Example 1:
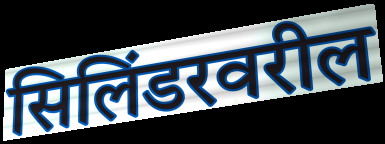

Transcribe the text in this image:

सिलिंडरवरील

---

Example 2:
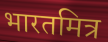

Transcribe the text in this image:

भारतमित्र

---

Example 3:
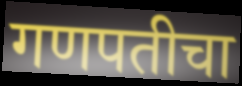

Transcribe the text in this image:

गणपतीचा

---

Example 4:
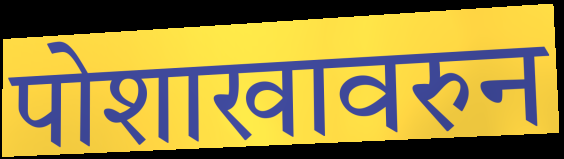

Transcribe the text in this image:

पोशाखावरुन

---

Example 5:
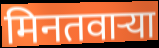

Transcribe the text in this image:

मिनतवार्‍या